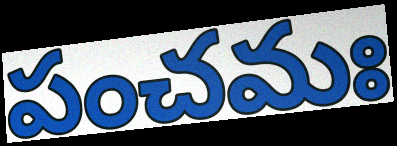
పంచమః